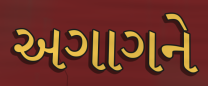
અગાગને